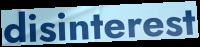
disinterest